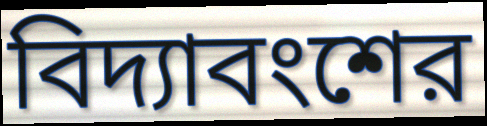
বিদ্যাবংশের